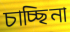
চাচ্ছিনা